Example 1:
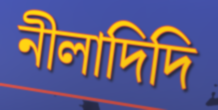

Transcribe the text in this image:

নীলাদিদি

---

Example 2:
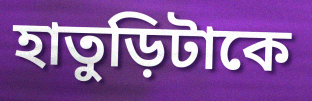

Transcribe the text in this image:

হাতুড়িটাকে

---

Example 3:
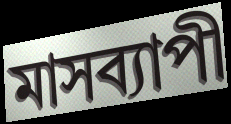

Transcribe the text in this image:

মাসব্যাপী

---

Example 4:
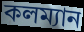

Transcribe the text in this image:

কলম্যান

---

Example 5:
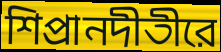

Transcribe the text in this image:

শিপ্রানদীতীরে